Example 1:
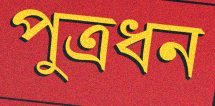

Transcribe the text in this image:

পুত্রধন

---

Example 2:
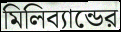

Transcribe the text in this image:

মিলিব্যান্ডের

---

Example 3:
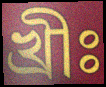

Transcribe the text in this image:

খ্রীঃ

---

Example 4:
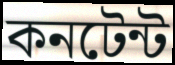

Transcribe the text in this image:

কনটেন্ট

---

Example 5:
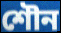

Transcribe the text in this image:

শৌন